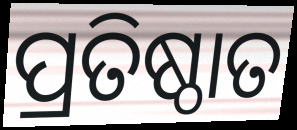
ପ୍ରତିଷ୍ଠାତ